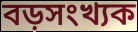
বড়সংখ্যক